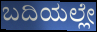
ಬದಿಯಲ್ಲೇ